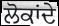
ਲੋਕਾਂਦੇ